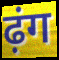
ढ़ंग